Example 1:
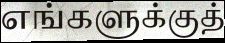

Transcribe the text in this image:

எங்களுக்குத்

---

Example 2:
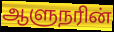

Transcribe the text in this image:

ஆளுநரின்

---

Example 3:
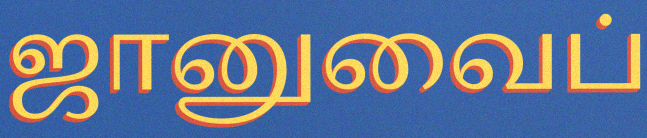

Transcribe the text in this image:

ஜானுவைப்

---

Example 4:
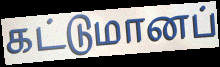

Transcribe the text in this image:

கட்டுமானப்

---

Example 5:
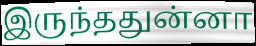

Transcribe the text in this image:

இருந்ததுன்னா